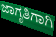
ಜಾಗೃತಿಗಾಗಿ